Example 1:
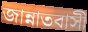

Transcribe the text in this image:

জান্নাতবাসী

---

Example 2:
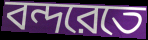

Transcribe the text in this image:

বন্দরেতে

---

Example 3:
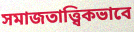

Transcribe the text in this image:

সমাজতাত্ত্বিকভাবে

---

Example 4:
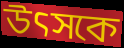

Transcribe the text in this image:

উৎসকে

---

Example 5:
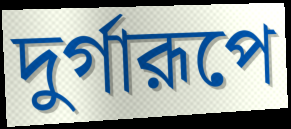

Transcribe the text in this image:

দুর্গারূপে